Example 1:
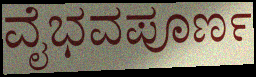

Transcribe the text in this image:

ವೈಭವಪೂರ್ಣ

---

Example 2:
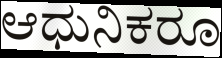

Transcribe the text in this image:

ಆಧುನಿಕರೂ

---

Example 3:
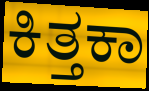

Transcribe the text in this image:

ಕಿತ್ತಕಾ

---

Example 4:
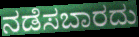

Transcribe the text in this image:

ನಡೆಸಬಾರದು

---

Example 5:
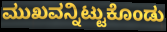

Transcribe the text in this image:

ಮುಖವನ್ನಿಟ್ಟುಕೊಂಡು